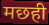
मछही